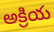
అక్రియ